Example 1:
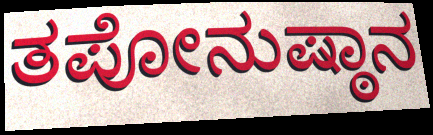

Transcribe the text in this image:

ತಪೋನುಷ್ಠಾನ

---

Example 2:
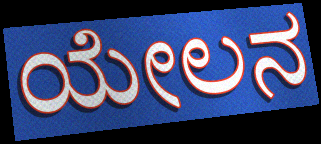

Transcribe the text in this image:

ಯೇಲನ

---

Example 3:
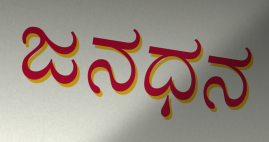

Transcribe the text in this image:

ಜನಧನ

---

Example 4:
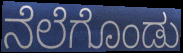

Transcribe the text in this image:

ನೆಲೆಗೊಂಡು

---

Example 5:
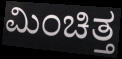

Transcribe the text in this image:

ಮಿಂಚಿತ್ತ